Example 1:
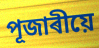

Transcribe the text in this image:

পূজাৰীয়ে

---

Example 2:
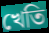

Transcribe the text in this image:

খেতি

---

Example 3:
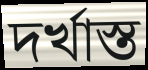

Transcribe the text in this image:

দৰ্খাস্ত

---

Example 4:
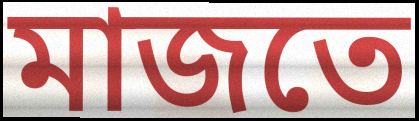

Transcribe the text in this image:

মাজতে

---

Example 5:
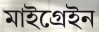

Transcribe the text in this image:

মাইগ্ৰেইন